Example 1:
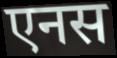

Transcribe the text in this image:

एनस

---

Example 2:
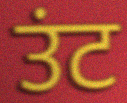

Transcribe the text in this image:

उंट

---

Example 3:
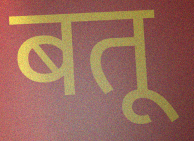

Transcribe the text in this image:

बतू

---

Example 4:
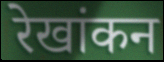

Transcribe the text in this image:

रेखांकन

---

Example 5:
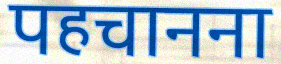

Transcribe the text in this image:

पहचानना